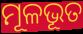
ମୂଳଭୂତ